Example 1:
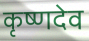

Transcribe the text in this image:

कृष्‍णदेव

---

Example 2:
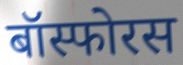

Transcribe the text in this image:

बॉस्फोरस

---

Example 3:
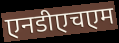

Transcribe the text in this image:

एनडीएचएम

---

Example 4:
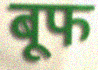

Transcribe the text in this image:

बूफ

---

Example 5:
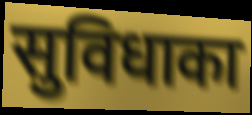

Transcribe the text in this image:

सुविधाका